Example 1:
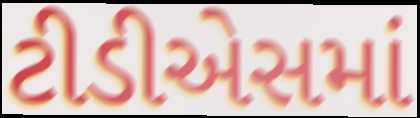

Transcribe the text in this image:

ટીડીએસમાં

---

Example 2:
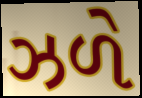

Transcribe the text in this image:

ઝળે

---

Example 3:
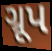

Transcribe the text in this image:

ગ્રૂપ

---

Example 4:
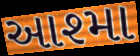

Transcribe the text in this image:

આશ્મા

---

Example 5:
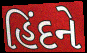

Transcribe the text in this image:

હિંદને